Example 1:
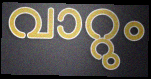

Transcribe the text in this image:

വാറ്റും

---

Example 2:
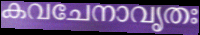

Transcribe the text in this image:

കവചേനാവൃതഃ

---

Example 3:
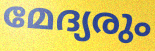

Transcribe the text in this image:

മേദ്യരും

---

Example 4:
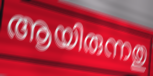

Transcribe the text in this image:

ആയിരുന്നതു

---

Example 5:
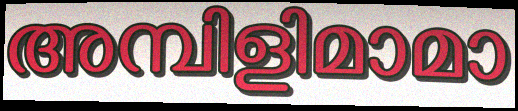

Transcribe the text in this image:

അമ്പിളിമാമാ